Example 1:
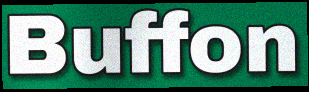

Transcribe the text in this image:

Buffon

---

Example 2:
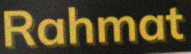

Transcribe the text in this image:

Rahmat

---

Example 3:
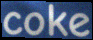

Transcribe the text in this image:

coke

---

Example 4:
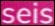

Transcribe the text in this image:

seis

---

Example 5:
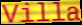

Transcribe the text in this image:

Villa